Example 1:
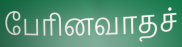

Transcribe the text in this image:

பேரினவாதச்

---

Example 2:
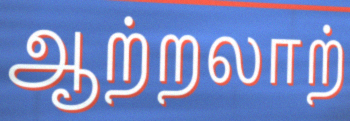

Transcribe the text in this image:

ஆற்றலாற்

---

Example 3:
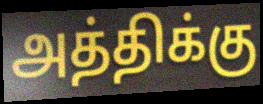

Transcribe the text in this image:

அத்திக்கு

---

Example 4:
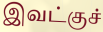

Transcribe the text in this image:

இவட்குச்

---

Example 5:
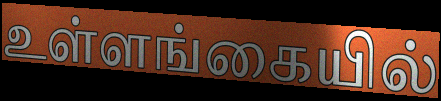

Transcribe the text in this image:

உள்ளங்கையில்